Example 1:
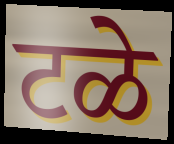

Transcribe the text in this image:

टळे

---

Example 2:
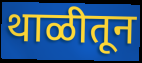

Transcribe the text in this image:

थाळीतून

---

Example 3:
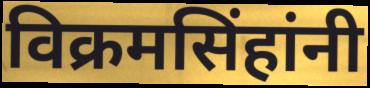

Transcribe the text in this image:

विक्रमसिंहांनी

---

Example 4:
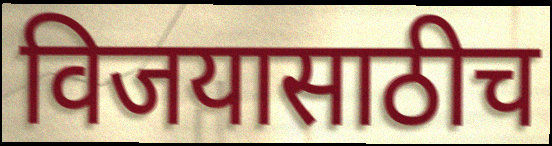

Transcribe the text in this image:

विजयासाठीच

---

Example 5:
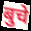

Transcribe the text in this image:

बुचे